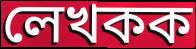
লেখকক